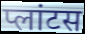
प्लांटस